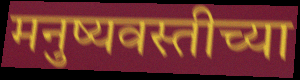
मनुष्यवस्तीच्या